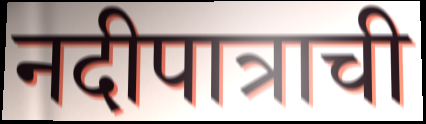
नदीपात्राची